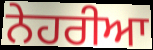
ਨੇਹਰੀਆ